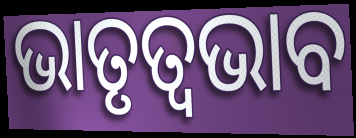
ଭାତୃତ୍ବଭାବ